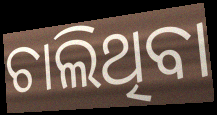
ଚାଲିଥିବା